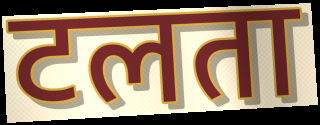
टलता